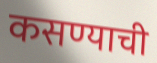
कसण्याची